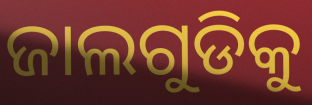
ଜାଲଗୁଡିକୁ